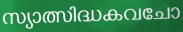
സ്യാത്സിദ്ധകവചോ